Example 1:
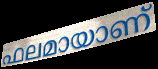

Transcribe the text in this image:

ഫലമായാണ്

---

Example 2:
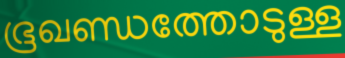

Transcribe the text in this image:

ഭൂഖണ്ഡത്തോടുള്ള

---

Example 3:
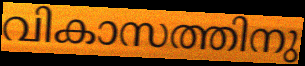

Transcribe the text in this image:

വികാസത്തിനു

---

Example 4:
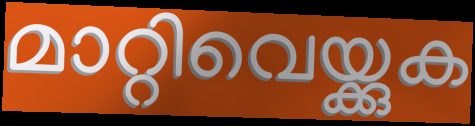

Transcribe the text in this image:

മാറ്റിവെയ്ക്കുക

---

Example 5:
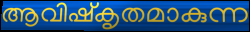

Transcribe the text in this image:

ആവിഷ്കൃതമാകുന്ന